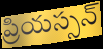
ప్రియస్సన్